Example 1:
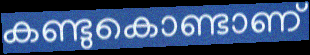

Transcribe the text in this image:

കണ്ടുകൊണ്ടാണ്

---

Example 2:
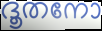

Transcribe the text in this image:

ദൂതനോ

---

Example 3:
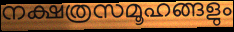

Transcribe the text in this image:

നക്ഷത്രസമൂഹങ്ങളും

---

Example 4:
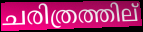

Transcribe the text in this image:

ചരിത്രത്തില്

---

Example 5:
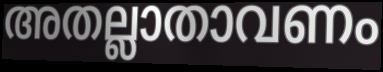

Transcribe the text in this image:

അതല്ലാതാവണം